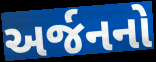
અર્જનનો